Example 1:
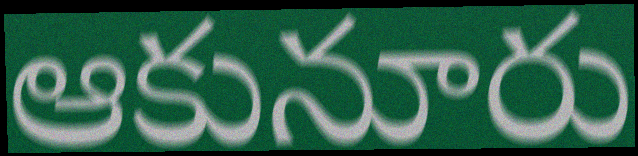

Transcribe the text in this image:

ఆకునూరు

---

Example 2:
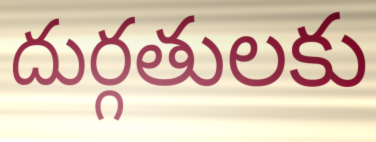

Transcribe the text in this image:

దుర్గతులకు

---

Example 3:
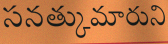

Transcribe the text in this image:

సనత్కుమారుని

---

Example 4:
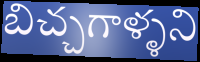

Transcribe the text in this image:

బిచ్చగాళ్ళని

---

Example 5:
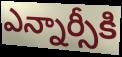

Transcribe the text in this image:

ఎన్నార్సీకి